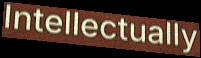
Intellectually